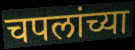
चपलांच्या